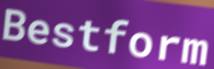
Bestform